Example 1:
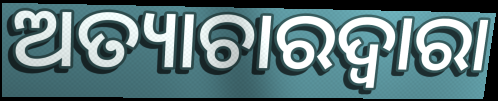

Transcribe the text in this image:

ଅତ୍ୟାଚାରଦ୍ୱାରା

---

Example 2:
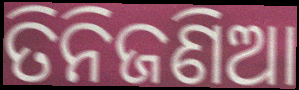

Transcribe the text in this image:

ତିନିଜଣିଆ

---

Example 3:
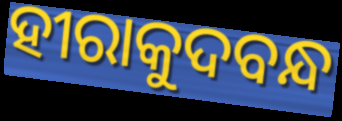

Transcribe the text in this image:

ହୀରାକୁଦବନ୍ଧ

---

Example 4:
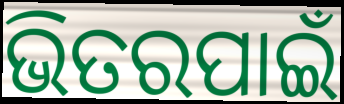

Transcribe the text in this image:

ଭିତରପାଇଁ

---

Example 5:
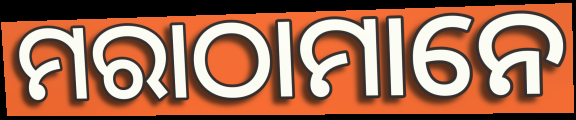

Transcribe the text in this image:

ମରାଠାମାନେ